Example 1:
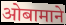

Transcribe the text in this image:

ओबामाने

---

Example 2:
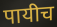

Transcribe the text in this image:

पायीच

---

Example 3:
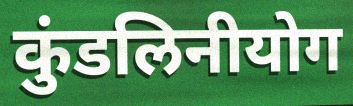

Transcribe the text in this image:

कुंडलिनीयोग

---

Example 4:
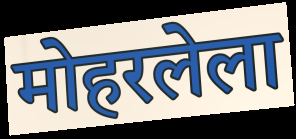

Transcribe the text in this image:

मोहरलेला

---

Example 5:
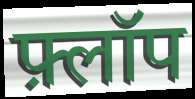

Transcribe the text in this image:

फ़्लॉप